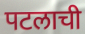
पटलाची